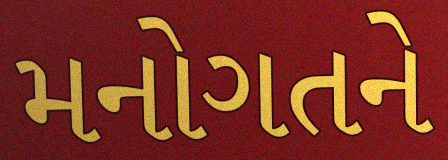
મનોગતને